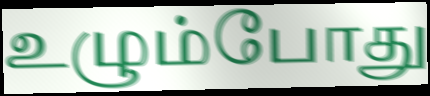
உழும்போது